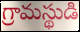
గ్రామస్థుడి